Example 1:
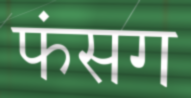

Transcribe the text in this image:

फंसग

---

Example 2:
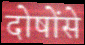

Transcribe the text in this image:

दोषोंसे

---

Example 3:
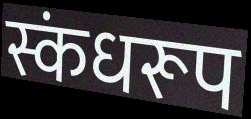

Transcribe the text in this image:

स्कंधरूप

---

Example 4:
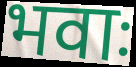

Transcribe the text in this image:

भवाः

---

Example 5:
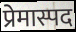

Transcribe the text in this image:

प्रेमास्पद